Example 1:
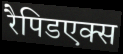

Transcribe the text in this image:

रैपिडएक्स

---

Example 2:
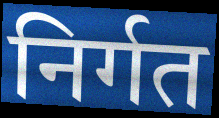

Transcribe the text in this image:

निर्गत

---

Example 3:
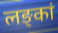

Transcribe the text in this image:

लङ्कां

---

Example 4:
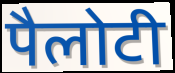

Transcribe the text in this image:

पैलोटी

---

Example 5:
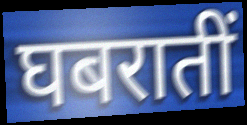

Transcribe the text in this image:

घबरातीं